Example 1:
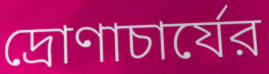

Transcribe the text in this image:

দ্রোণাচার্যের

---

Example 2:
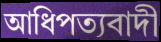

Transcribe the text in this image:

আধিপত্যবাদী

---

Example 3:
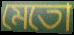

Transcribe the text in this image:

মেতো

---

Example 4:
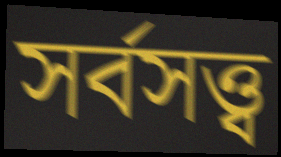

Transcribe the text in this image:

সর্বসত্ত্ব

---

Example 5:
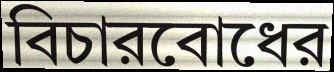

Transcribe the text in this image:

বিচারবোধের